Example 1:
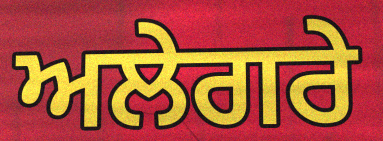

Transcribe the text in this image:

ਅਲੇਗਰੇ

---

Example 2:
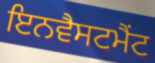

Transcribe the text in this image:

ਇਨਵੈਸਟਮੈਂਟ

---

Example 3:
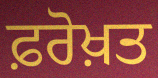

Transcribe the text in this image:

ਫ਼ਰੋਖ਼ਤ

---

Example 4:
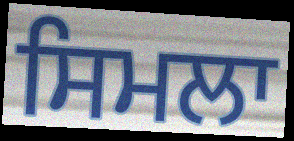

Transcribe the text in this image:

ਸਿਮਲਾ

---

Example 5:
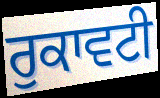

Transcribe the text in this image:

ਰੁਕਾਵਟੀ